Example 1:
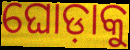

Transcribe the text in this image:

ଘୋଡ଼ାକୁ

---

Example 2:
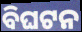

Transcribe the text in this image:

ବିଘଟନ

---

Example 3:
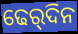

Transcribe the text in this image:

ଢେର୍‌ଦିନ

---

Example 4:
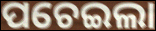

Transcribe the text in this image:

ପଚେଇଲା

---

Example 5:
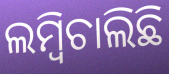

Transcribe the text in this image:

ଲମ୍ବିଚାଲିଛି